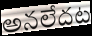
అనలేదట